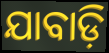
ଯାବାଡ଼ି